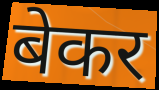
बेकर